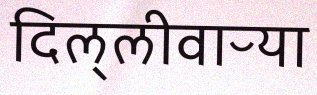
दिल्लीवाऱ्या